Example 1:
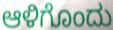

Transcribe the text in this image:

ಆಳಿಗೊಂದು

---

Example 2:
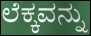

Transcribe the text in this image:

ಲೆಕ್ಕವನ್ನು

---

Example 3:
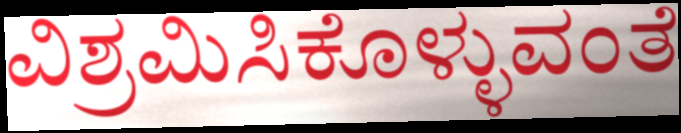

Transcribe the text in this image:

ವಿಶ್ರಮಿಸಿಕೊಳ್ಳುವಂತೆ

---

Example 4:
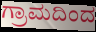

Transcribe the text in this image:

ಗ್ರಾಮದಿಂದ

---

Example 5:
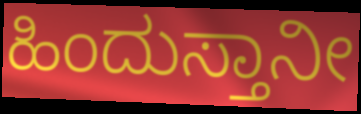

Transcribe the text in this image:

ಹಿಂದುಸ್ತಾನೀ